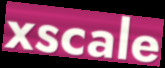
xscale